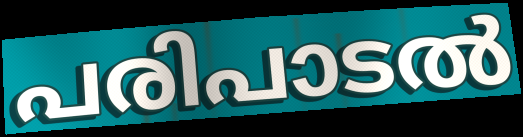
പരിപാടൽ